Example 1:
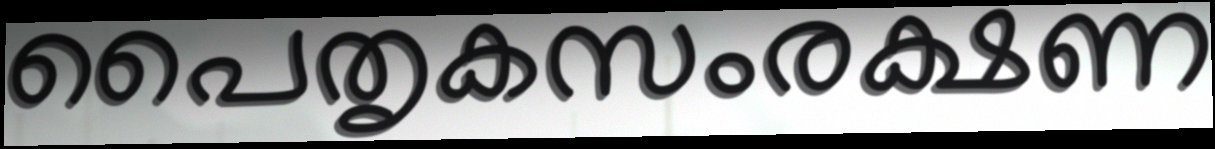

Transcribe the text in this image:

പൈതൃകസംരക്ഷണ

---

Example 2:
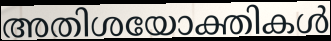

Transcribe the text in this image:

അതിശയോക്തികൾ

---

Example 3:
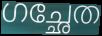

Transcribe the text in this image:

ഗച്ഛേത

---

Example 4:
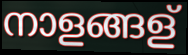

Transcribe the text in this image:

നാളങ്ങള്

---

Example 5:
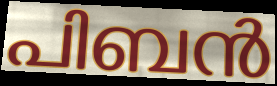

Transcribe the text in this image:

പിബൻ